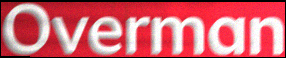
Overman